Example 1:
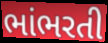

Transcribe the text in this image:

ભાંભરતી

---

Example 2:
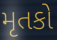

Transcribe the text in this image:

મૃતકો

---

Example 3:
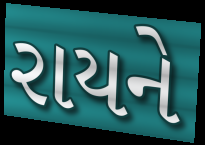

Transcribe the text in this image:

રાયને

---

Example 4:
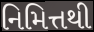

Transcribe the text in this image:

નિમિત્તથી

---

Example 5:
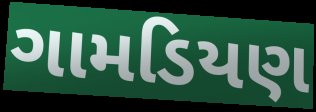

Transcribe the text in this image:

ગામડિયણ